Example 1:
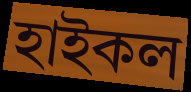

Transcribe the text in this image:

হাইকল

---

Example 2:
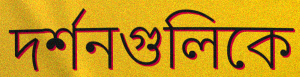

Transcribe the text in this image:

দর্শনগুলিকে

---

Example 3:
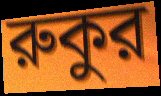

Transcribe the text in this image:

রুকুর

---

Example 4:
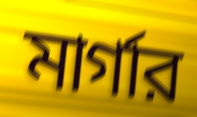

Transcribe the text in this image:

মার্গার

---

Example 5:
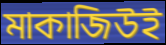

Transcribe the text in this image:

মাকাজিউই